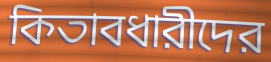
কিতাবধারীদের